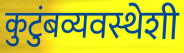
कुटुंबव्यवस्थेशी